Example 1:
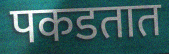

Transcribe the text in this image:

पकडतात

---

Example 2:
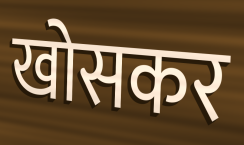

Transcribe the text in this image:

खोसकर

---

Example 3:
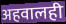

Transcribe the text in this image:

अहवालही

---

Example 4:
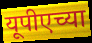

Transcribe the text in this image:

यूपीएच्या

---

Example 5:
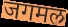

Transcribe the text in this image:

जगमल